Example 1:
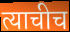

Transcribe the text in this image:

त्याचीच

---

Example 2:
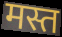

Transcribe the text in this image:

मस्त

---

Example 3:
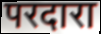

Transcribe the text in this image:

परदारा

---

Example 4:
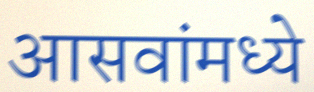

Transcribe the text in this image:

आसवांमध्ये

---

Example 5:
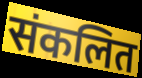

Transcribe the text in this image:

संकलित